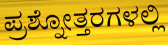
ಪ್ರಶ್ನೋತ್ತರಗಳಲ್ಲಿ